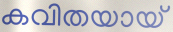
കവിതയായ്